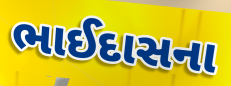
ભાઈદાસના